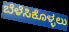
ಬೆಳೆಸಿಕೊಳ್ಳಲು